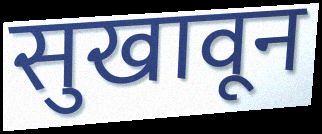
सुखावून